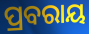
ପ୍ରବରାୟ